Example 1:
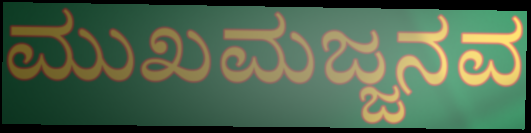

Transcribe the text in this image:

ಮುಖಮಜ್ಜನವ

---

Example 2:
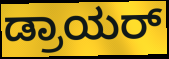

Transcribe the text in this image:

ಡ್ರಾಯರ್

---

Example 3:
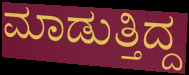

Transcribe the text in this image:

ಮಾಡುತ್ತಿದ್ದ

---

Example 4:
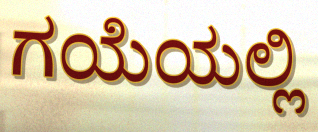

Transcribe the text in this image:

ಗಯೆಯಲ್ಲಿ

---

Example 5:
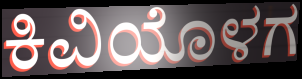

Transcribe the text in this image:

ಕಿವಿಯೊಳಗ